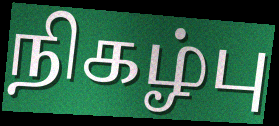
நிகழ்பு